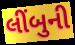
લીંબુની